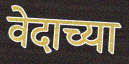
वेदाच्या